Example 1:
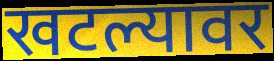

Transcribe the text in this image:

खटल्यावर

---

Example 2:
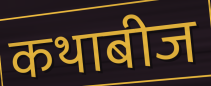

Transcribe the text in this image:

कथाबीज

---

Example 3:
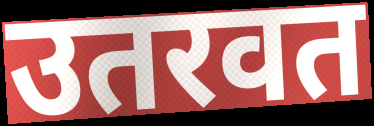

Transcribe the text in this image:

उतरवत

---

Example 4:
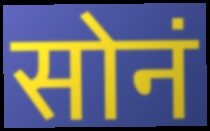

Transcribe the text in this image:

सोनं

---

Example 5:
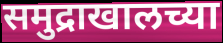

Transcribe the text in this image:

समुद्राखालच्या